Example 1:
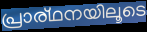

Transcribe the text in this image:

പ്രാര്ഥനയിലൂടെ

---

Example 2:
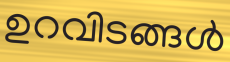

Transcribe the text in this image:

ഉറവിടങ്ങൾ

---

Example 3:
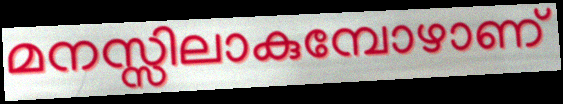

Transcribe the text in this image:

മനസ്സിലാകുമ്പോഴാണ്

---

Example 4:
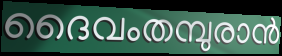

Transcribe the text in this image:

ദൈവംതമ്പുരാൻ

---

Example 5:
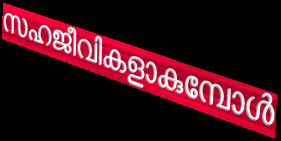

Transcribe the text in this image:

സഹജീവികളാകുമ്പോൾ